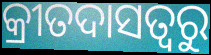
କ୍ରୀତଦାସତ୍ୱରୁ